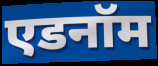
एडनॉम